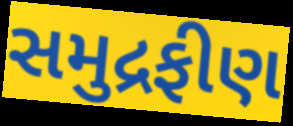
સમુદ્રફીણ